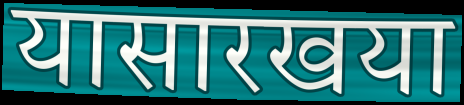
यासारखया